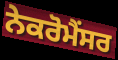
ਨੇਕਰੋਮੈਂਸਰ